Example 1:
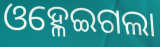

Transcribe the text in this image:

ଓହ୍ଳେଇଗଲା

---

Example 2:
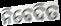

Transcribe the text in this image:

ନିବେଦିତ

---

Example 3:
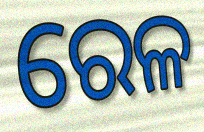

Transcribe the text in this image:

ରେଳ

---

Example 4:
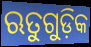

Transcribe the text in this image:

ଋତୁଗୁଡ଼ିକ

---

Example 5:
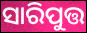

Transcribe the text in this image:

ସାରିପୁତ୍ତ